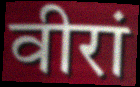
वीरां